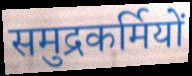
समुद्रकर्मियों